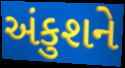
અંકુશને